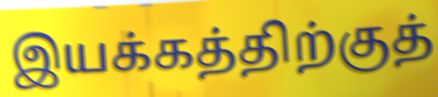
இயக்கத்திற்குத்